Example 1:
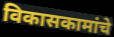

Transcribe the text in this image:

विकासकामांचे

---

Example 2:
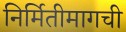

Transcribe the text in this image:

निर्मितीमागची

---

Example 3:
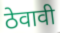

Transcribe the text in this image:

ठेवावी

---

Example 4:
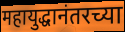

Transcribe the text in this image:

महायुद्धानंतरच्या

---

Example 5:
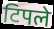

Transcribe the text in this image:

टिपले